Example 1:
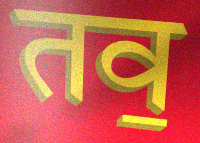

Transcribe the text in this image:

तव॒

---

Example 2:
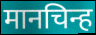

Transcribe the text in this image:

मानचिन्ह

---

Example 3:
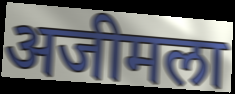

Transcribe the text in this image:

अजीमला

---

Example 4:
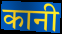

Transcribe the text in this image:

कानी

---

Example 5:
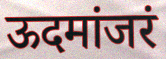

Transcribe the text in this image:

ऊदमांजरं